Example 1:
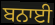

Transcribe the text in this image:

ਬਨਾਈ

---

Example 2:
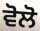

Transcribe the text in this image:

ਵੋਲੋ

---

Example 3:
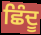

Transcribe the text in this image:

ਛਿੰਦੂ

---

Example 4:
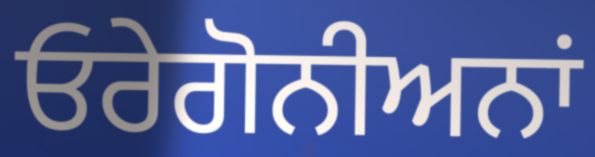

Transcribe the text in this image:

ਓਰੇਗੋਨੀਅਨਾਂ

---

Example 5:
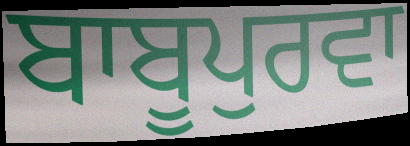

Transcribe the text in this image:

ਬਾਬੂਪੁਰਵਾ